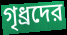
গৃধ্রদের